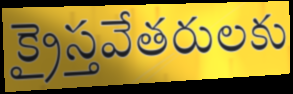
క్రైస్తవేతరులకు